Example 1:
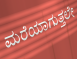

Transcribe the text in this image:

ಮರೆಯಾಗುತ್ತಲೇ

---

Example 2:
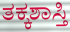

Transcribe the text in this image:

ತಕ್ಕಶಾಸ್ತಿ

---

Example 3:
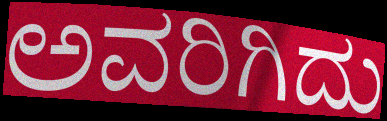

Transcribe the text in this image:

ಅವರಿಗಿದು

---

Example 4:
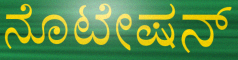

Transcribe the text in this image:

ನೊಟೇಷನ್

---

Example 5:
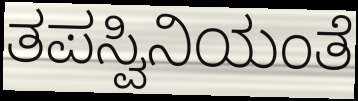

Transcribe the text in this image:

ತಪಸ್ವಿನಿಯಂತೆ